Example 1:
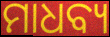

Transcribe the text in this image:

ମାଧବ୍ୟ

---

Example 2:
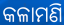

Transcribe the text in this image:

କଳାମଣି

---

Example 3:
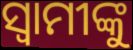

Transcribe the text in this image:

ସ୍ୱାମୀଙ୍କୁ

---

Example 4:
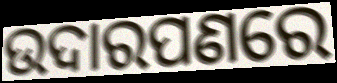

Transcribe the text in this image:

ଉଦାରପଣରେ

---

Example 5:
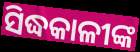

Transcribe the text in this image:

ସିଦ୍ଧକାଳୀଙ୍କ